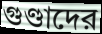
গুণ্ডাদের